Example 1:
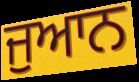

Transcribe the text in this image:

ਜੁਆਨ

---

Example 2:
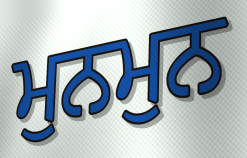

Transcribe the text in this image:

ਮੁਨਮੁਨ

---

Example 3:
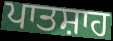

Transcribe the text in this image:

ਪਾਤਸ਼ਾਹ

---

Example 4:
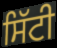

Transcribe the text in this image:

ਸਿੱਟੀ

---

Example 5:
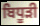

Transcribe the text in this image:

ਬਿਧੂੜੀ